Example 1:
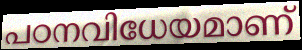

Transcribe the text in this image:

പഠനവിധേയമാണ്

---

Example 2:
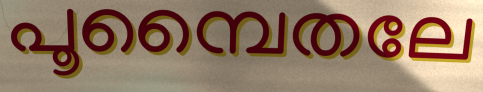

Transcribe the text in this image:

പൂമ്പൈതലേ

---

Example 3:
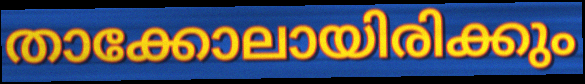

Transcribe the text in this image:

താക്കോലായിരിക്കും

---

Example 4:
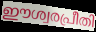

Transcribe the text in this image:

ഈശ്വരപ്രീതി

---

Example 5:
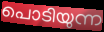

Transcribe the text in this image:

പൊടിയുന്ന